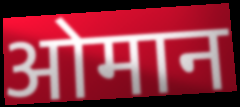
ओमान